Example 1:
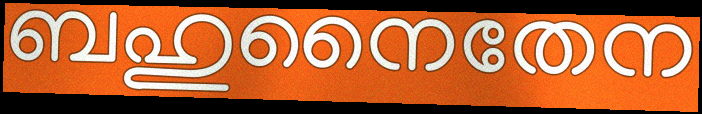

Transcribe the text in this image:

ബഹുനൈതേന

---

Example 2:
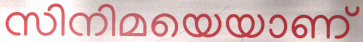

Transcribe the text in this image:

സിനിമയെയാണ്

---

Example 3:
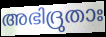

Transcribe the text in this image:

അഭിദ്രുതാഃ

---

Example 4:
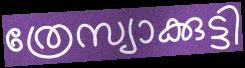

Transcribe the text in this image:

ത്രേസ്യാക്കുട്ടി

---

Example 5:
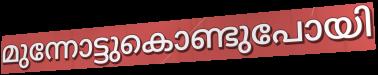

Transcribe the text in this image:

മുന്നോട്ടുകൊണ്ടുപോയി